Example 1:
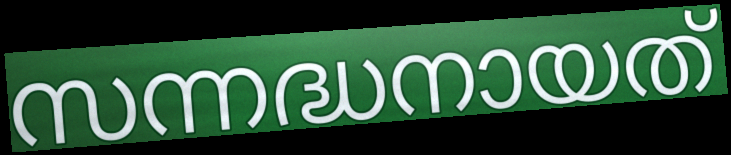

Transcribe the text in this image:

സന്നദ്ധനായത്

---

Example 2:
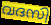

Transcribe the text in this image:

വദസി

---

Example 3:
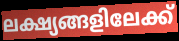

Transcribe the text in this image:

ലക്ഷ്യങ്ങളിലേക്ക്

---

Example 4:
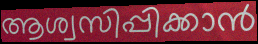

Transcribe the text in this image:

ആശ്വസിപ്പിക്കാൻ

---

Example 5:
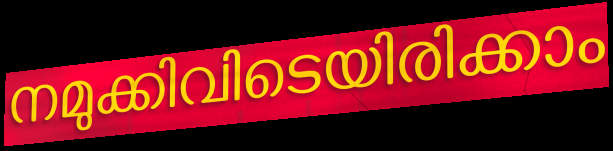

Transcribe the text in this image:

നമുക്കിവിടെയിരിക്കാം